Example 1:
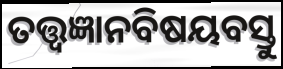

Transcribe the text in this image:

ତତ୍ତ୍ୱଜ୍ଞାନବିଷୟବସ୍ତୁ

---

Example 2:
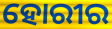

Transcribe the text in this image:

ହୋରୀର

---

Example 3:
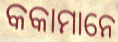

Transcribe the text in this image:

କକାମାନେ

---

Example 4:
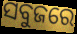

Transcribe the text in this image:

ସବୁଜରେ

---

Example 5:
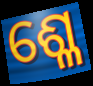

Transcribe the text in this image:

ଶ୍ଳେ